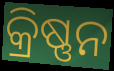
କ୍ରିଷ୍ଣନ